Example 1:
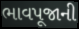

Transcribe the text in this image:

ભાવપૂજાની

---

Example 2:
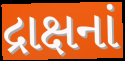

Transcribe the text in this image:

દ્રાક્ષનાં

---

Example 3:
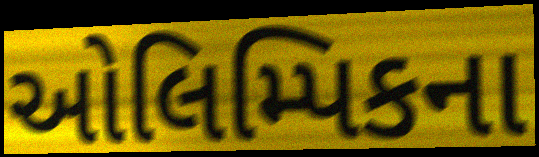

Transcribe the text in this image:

ઓલિમ્પિકના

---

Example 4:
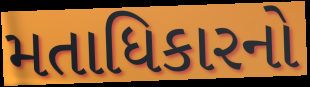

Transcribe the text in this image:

મતાધિકારનો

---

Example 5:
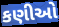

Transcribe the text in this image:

કણીઓ